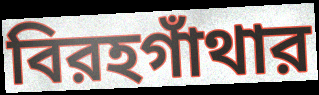
বিরহগাঁথার